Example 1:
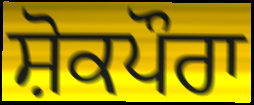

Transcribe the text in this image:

ਸ਼ੋਕਪੌਰਾ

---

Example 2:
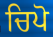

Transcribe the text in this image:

ਚਿਪੋ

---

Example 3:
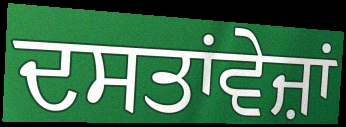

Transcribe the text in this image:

ਦਸਤਾਂਵੇਜ਼ਾਂ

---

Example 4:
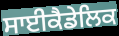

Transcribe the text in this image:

ਸਾਈਕੈਡੇਲਿਕ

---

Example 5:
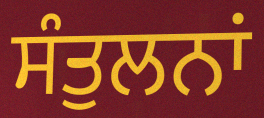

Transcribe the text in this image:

ਸੰਤੁਲਨਾਂ